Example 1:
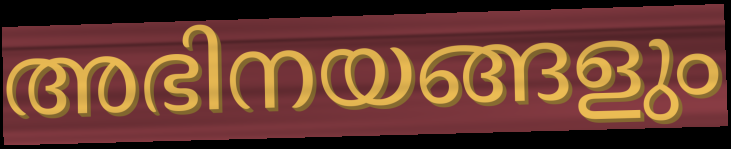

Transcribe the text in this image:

അഭിനയങ്ങളും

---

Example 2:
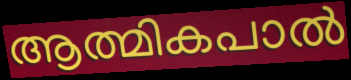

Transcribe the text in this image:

ആത്മികപാൽ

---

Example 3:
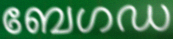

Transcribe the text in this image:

ബേഗഡ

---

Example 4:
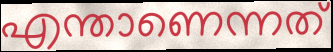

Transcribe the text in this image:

എന്താണെന്നത്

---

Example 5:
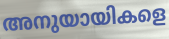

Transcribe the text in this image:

അനുയായികളെ